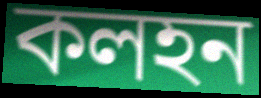
কলহন